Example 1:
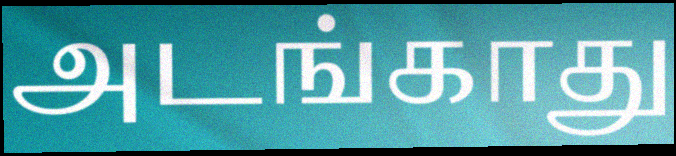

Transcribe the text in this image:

அடங்காது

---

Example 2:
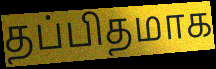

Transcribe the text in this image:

தப்பிதமாக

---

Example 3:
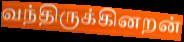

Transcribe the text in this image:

வந்திருக்கினறன்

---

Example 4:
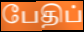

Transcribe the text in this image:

பேதிப்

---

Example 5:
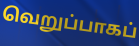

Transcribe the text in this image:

வெறுப்பாகப்